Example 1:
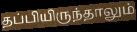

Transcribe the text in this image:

தப்பியிருந்தாலும்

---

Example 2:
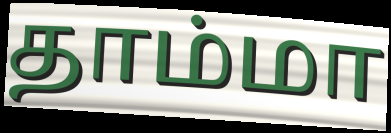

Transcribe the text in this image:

தாம்மா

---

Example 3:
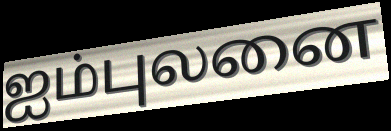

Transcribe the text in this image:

ஐம்புலனை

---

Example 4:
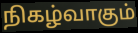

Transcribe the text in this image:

நிகழ்வாகும்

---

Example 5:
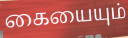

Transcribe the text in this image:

கையையும்